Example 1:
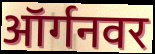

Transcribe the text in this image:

ऑर्गनवर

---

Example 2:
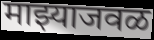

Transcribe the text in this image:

माझ्याजवळ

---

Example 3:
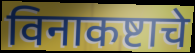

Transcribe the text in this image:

विनाकष्टाचे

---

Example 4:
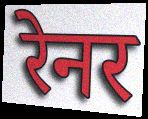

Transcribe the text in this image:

रेनर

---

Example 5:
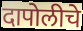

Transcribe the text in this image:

दापोलीचे